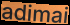
adimai